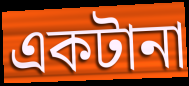
একটানা